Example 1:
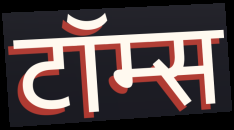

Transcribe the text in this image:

टॉम्स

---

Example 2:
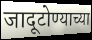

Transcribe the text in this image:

जादूटोण्याच्या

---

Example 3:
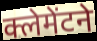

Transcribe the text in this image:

क्लेमेंटने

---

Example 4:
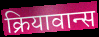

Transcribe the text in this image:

क्रियावान्स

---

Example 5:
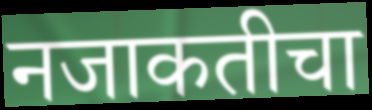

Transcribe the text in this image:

नजाकतीचा